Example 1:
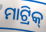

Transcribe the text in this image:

ମାଟ୍ରିକ୍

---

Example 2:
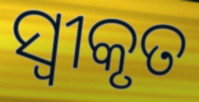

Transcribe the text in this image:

ସ୍ବୀକୃତ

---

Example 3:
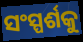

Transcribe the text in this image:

ସଂସ୍ପର୍ଶକୁ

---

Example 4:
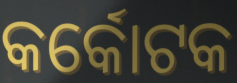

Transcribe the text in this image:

କର୍କୋଟକ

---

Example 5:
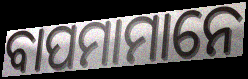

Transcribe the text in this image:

ବାପମାମାନେ